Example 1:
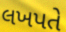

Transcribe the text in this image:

લખપતે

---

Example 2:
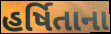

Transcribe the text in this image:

હર્ષિતાના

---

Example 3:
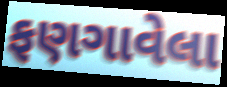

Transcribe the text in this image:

ફણગાવેલા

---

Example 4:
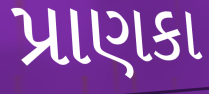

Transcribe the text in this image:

પ્રાણકા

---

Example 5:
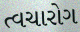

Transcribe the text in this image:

ત્વચારોગ